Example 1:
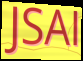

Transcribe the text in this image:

JSAI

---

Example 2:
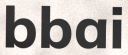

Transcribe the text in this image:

bbai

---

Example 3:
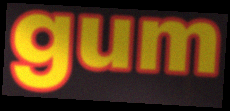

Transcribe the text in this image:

gum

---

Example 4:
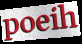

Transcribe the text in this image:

poeih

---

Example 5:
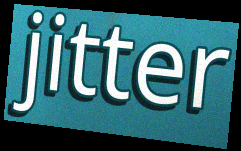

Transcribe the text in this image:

jitter